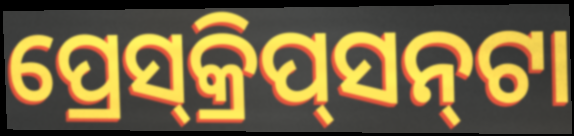
ପ୍ରେସ୍‌କ୍ରିପ୍‌ସନ୍‌ଟା